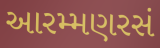
આરમ્મણરસં